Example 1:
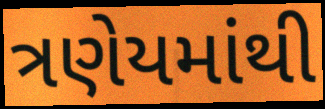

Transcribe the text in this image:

ત્રણેયમાંથી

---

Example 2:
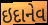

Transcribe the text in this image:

ઇદાનેવ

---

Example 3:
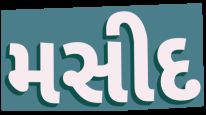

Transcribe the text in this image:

મસીદ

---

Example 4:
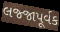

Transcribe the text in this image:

લજ્જાપૂર્વક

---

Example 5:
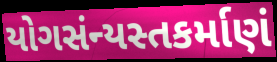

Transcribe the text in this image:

યોગસંન્યસ્તકર્માણં